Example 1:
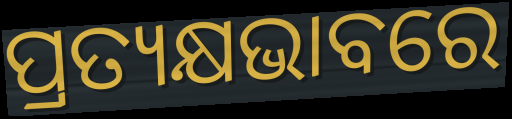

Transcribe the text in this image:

ପ୍ରତ୍ୟକ୍ଷଭାବରେ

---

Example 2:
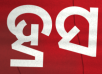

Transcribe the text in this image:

ହ୍ରସ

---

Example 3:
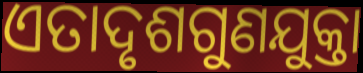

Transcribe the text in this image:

ଏତାଦୃଶଗୁଣଯୁକ୍ତା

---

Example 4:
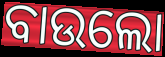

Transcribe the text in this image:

ବାଉଲୋ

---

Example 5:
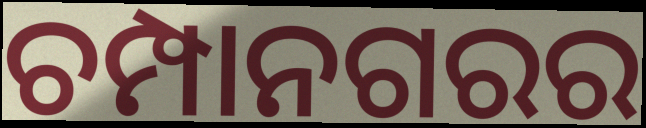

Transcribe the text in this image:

ଚମ୍ପାନଗରର